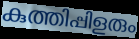
കുത്തിപ്പിളരും